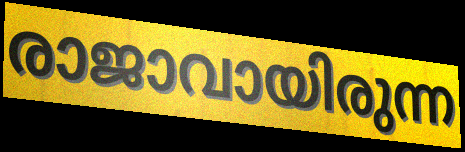
രാജാവായിരുന്ന